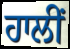
ਹਾਲੀਂ